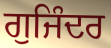
ਗੁਜਿੰਦਰ